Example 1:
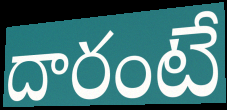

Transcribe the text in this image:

దారంటే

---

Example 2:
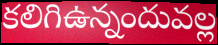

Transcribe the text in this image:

కలిగిఉన్నందువల్ల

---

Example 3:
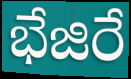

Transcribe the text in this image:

భేజిరే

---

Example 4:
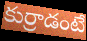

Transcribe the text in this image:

కుర్రాడంటే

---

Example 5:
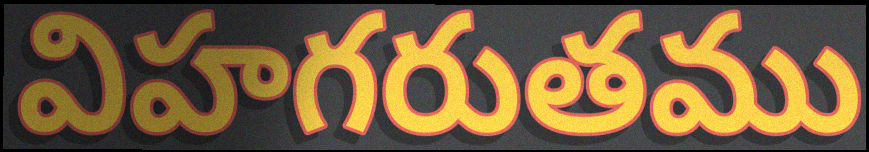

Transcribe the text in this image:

విహగరుతము